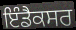
ਇੰਡੈਕਸਰ